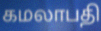
கமலாபதி